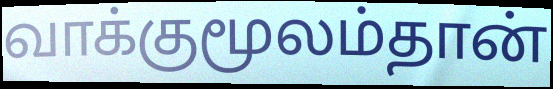
வாக்குமூலம்தான்